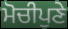
ਮੋਚੀਪੁਣੇ